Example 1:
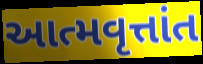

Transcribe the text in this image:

આત્મવૃત્તાંત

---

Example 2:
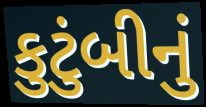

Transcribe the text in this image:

કુટુંબીનું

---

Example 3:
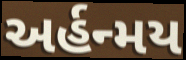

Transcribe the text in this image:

અર્હન્મય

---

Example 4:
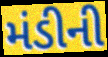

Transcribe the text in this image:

મંડીની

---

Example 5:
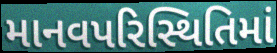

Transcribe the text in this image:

માનવપરિસ્થિતિમાં